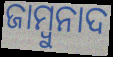
ଜାମ୍ବୁନାଦ